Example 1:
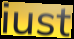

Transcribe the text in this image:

iust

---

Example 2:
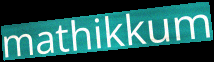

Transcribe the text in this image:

mathikkum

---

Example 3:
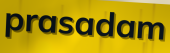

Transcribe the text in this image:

prasadam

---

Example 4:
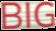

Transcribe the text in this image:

BIG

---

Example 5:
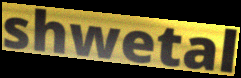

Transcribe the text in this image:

shwetal